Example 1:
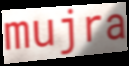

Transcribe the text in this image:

mujra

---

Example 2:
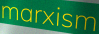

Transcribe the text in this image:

marxism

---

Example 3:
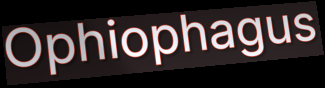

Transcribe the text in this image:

Ophiophagus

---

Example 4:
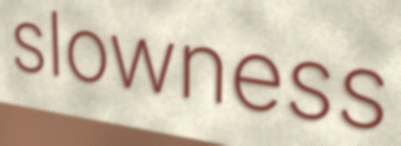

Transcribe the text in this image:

slowness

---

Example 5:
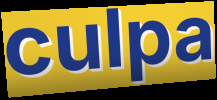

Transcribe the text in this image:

culpa